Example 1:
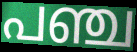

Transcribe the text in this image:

പഞ്ച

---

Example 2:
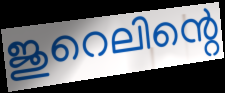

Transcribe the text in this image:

ജുറെലിന്റെ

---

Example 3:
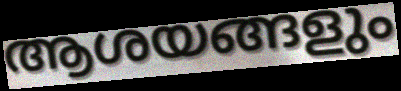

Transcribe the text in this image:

ആശയങ്ങളും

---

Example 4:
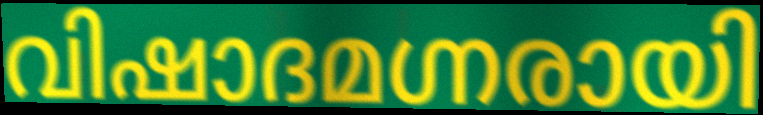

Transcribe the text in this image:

വിഷാദമഗ്നരായി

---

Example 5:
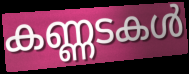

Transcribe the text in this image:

കണ്ണടകൾ